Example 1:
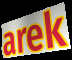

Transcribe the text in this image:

arek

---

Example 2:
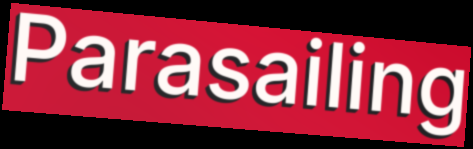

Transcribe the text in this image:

Parasailing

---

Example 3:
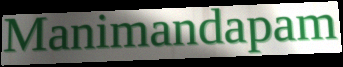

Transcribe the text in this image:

Manimandapam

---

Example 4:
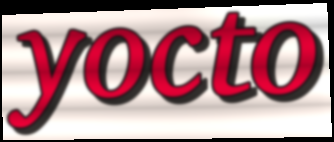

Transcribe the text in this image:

yocto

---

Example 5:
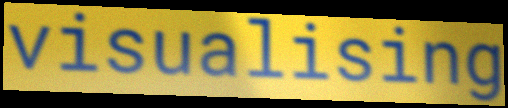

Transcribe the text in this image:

visualising